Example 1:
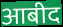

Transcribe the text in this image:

आबीद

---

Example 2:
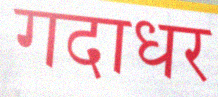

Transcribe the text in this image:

गदाधर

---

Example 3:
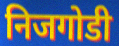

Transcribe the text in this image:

निजगोडी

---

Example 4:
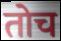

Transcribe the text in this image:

तोच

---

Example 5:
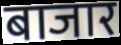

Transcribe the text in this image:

बाजार